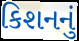
કિશનનું